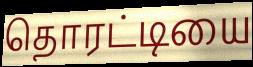
தொரட்டியை